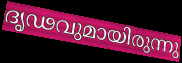
ദൃഢവുമായിരുന്നു